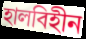
হালবিহীন